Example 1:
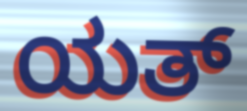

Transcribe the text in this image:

ಯತ್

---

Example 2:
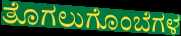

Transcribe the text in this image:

ತೊಗಲುಗೊಂಬೆಗಳ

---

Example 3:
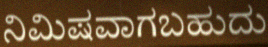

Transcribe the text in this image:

ನಿಮಿಷವಾಗಬಹುದು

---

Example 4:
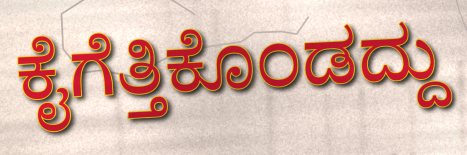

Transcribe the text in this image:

ಕೈಗೆತ್ತಿಕೊಂಡದ್ದು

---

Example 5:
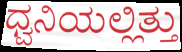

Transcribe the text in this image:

ಧ್ವನಿಯಲ್ಲಿತ್ತು